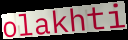
olakhti